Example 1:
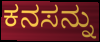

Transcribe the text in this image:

ಕನಸನ್ನು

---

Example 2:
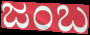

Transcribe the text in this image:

ಜಂಬ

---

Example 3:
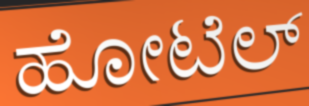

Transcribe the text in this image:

ಹೋಟೆಲ್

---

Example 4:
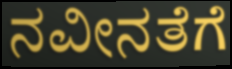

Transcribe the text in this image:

ನವೀನತೆಗೆ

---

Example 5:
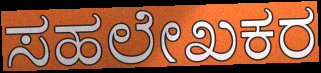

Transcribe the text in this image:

ಸಹಲೇಖಕರ